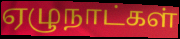
ஏழுநாட்கள்